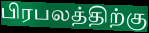
பிரபலத்திற்கு